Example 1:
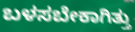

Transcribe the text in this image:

ಬಳಸಬೇಕಾಗಿತ್ತು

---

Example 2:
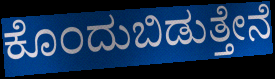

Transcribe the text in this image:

ಕೊಂದುಬಿಡುತ್ತೇನೆ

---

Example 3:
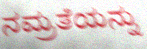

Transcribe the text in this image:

ನಮ್ರತೆಯನ್ನು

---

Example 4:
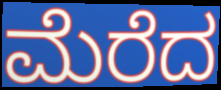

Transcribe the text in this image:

ಮೆರೆದ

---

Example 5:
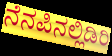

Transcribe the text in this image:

ನೆನಪಿನಲ್ಲಿಡಿರಿ